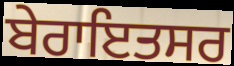
ਬੇਰਾਇਤਸਰ